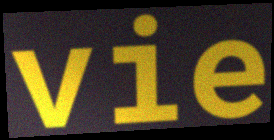
vie